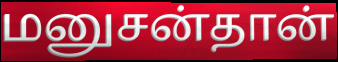
மனுசன்தான்